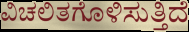
ವಿಚಲಿತಗೊಳಿಸುತ್ತಿದೆ